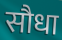
सौधा